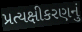
પ્રત્યક્ષીકરણનું